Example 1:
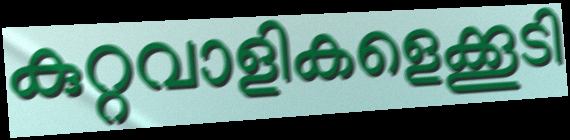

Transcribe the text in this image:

കുറ്റവാളികളെക്കൂടി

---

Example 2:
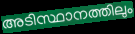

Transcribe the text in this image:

അടിസ്ഥാനത്തിലും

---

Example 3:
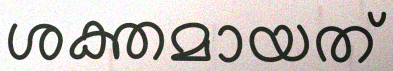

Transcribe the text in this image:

ശക്തമായത്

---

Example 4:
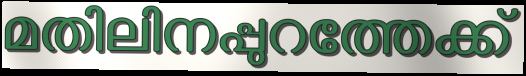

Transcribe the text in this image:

മതിലിനപ്പുറത്തേക്ക്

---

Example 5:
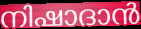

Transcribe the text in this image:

നിഷാദാൻ